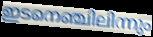
ഇടനെഞ്ചിലിന്നും